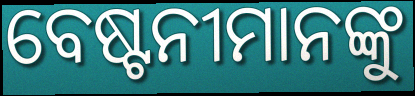
ବେଷ୍ଟନୀମାନଙ୍କୁ